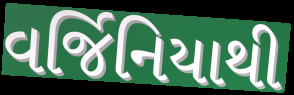
વર્જિનિયાથી